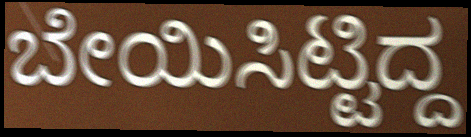
ಬೇಯಿಸಿಟ್ಟಿದ್ದ